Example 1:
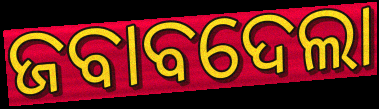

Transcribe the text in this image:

ଜବାବଦେଲା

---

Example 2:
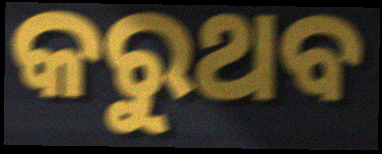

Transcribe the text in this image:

କରୁଥବ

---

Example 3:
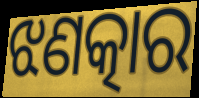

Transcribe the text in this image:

ଝଣତ୍କାର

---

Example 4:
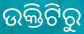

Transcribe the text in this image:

ଉକ୍ତିଟିରୁ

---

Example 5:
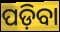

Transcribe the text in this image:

ପଡ଼ିବା